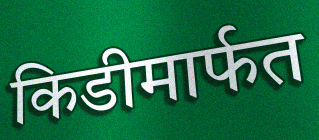
किडीमार्फत